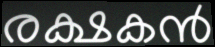
രക്ഷകൻ